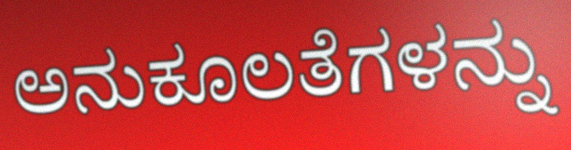
ಅನುಕೂಲತೆಗಳನ್ನು